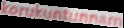
korukuntunnam